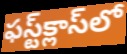
ఫస్ట్‌క్లాస్‌లో